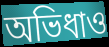
অভিধাও